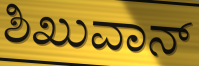
ಶಿಖುವಾನ್